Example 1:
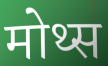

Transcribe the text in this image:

मोथ्स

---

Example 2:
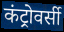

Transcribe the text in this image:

कंट्रोवर्सी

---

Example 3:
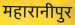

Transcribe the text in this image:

महारानीपुर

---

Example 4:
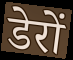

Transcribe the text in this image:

डेरों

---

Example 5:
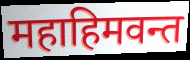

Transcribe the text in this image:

महाहिमवन्त